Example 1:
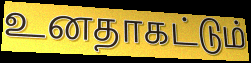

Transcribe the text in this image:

உனதாகட்டும்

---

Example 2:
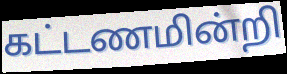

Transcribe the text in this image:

கட்டணமின்றி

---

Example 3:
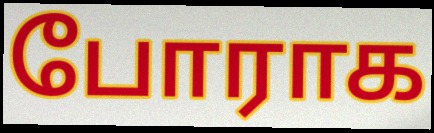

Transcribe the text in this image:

போராக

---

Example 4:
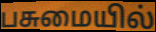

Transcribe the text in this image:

பசுமையில்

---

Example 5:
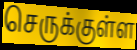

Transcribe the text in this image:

செருக்குள்ள